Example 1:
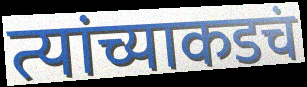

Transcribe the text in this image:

त्यांच्याकडचं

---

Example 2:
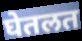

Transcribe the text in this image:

घेतलत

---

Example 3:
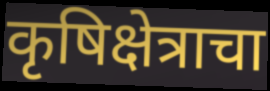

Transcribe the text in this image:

कृषिक्षेत्राचा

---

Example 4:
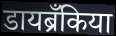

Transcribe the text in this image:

डायब्रँकिया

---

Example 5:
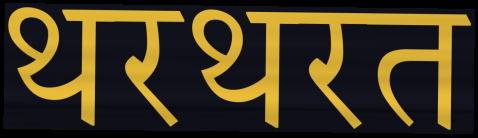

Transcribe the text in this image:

थरथरत